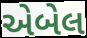
એબેલ